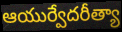
ఆయుర్వేదరీత్యా